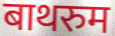
बाथरुम